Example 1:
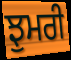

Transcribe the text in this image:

ਝੁਮਰੀ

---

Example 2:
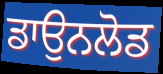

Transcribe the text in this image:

ਡਾਉਨਲੋਡ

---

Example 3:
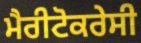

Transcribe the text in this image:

ਮੈਰੀਟੋਕਰੇਸੀ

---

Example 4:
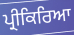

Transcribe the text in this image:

ਪ੍ਰੀਕਿਰਿਆ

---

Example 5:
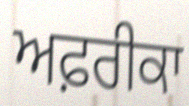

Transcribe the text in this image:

ਅਫ਼ਰੀਕਾ